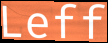
Leff